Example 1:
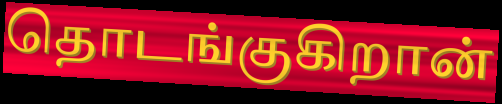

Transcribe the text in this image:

தொடங்குகிறான்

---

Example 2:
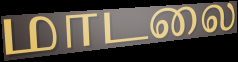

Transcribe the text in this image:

மாடலை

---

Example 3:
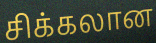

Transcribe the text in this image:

சிக்கலான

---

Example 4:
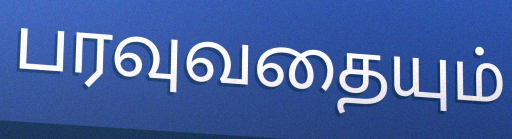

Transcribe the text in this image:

பரவுவதையும்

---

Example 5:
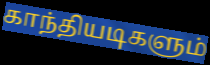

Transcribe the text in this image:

காந்தியடிகளும்